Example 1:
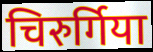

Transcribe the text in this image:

चिरुर्गिया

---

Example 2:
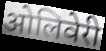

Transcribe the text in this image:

ओलिवेरी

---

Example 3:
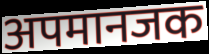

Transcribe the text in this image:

अपमानजक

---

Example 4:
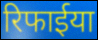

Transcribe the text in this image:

रिफाईया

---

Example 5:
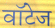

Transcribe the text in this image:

वॉटेज